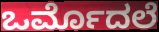
ಒರ್ಮೊದಲೆ